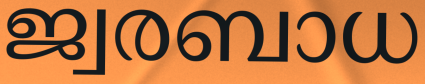
ജ്വരബാധ